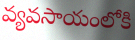
వ్యవసాయంలోకి